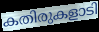
കതിരുകളാടി